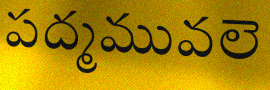
పద్మమువలె